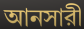
আনসারী